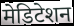
मेडिटेशन